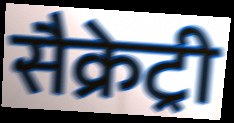
सैक्रेट्री